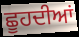
ਛੂਹਦੀਆਂ